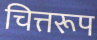
चित्तरूप